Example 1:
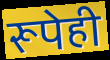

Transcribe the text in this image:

रूपेही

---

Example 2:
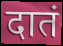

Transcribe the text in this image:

दातं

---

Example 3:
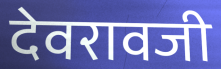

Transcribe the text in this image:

देवरावजी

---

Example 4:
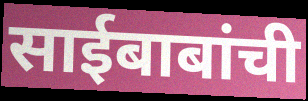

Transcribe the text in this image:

साईबाबांची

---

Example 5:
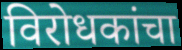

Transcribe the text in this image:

विरोधकांचा